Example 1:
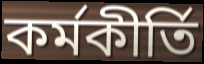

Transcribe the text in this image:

কর্মকীর্তি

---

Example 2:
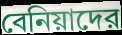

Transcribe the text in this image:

বেনিয়াদের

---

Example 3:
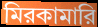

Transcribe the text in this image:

মিরকামারি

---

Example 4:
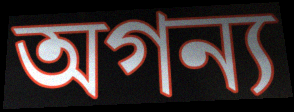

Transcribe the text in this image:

অগন্য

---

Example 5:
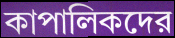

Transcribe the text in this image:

কাপালিকদের